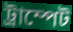
ট্ৰাম্পেট